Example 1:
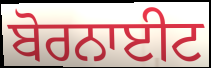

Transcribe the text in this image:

ਬੋਰਨਾਈਟ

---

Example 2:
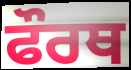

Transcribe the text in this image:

ਫੌਰਥ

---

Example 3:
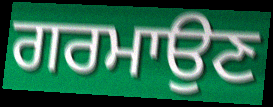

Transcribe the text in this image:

ਗਰਮਾਉਣ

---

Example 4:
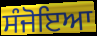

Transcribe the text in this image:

ਸੰਜੋਇਆ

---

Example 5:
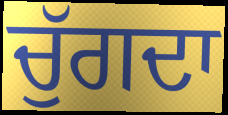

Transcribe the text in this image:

ਚੁੱਗਦਾ